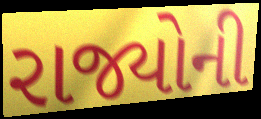
રાજ્યોની